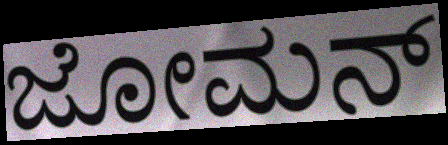
ಜೋಮನ್